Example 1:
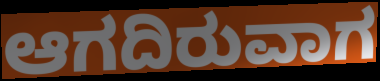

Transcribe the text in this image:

ಆಗದಿರುವಾಗ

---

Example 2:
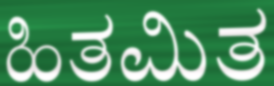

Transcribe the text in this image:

ಹಿತಮಿತ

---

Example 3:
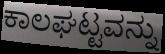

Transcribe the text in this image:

ಕಾಲಘಟ್ಟವನ್ನು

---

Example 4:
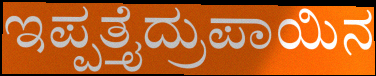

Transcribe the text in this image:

ಇಪ್ಪತ್ತೈದ್ರುಪಾಯಿನ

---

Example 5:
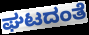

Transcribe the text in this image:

ಘಟದಂತೆ